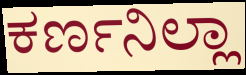
ಕರ್ಣನಿಲ್ಲಾ